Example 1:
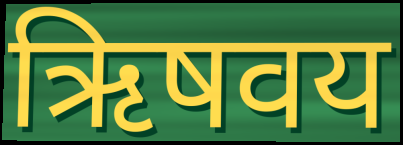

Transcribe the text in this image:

ऋिषवय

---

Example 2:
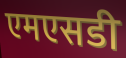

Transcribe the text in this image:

एमएसडी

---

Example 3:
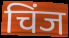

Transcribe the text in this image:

चिंज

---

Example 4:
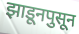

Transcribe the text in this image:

झाडूनपुसून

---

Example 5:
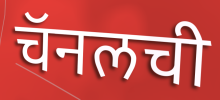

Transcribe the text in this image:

चॅनलची